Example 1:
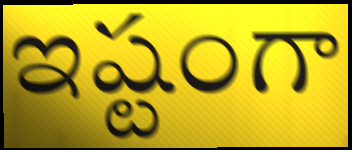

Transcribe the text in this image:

ఇష్టంగా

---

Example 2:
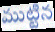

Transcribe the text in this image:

ముట్టిన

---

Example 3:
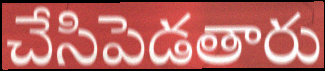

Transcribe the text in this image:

చేసిపెడతారు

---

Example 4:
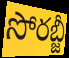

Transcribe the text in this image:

సోరబ్జీ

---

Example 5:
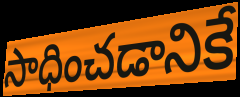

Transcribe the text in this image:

సాధించడానికే